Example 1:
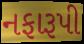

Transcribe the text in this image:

નફારૂપી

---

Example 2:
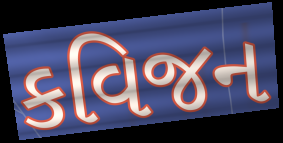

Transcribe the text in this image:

કવિજન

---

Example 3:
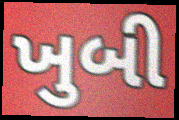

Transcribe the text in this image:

ખુબી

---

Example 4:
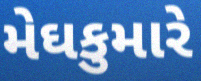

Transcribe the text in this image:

મેઘકુમારે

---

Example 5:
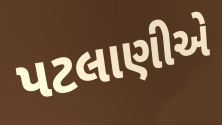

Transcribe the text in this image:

પટલાણીએ